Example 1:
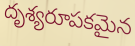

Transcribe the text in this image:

దృశ్యరూపకమైన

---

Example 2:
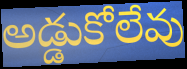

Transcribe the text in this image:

అడ్డుకోలేవు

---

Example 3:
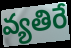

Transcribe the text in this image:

వ్యతిరే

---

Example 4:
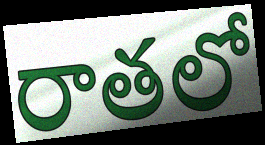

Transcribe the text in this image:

రాతలో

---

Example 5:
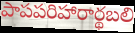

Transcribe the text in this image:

పాపపరిహారార్థబలి